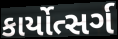
કાર્યોત્સર્ગ